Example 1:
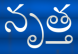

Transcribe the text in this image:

నృత్త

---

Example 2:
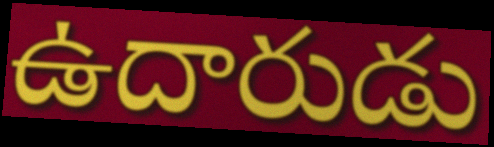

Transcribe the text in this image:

ఉదారుడు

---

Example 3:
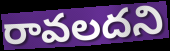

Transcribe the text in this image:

రావలదని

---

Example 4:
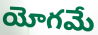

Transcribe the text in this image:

యోగమే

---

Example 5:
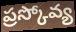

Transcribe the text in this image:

ప్రస్కోవ్య